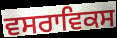
ਵਸਰਾਵਿਕਸ